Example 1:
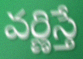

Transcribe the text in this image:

వర్ణిస్తే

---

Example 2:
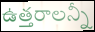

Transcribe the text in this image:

ఉత్తరాలన్నీ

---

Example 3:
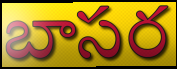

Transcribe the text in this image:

బాసర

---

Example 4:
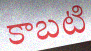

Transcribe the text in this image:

కాబటి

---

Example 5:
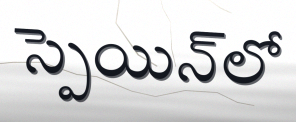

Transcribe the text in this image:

స్పెయిన్‌లో